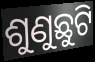
ଶୁଣୁଛୁଟି